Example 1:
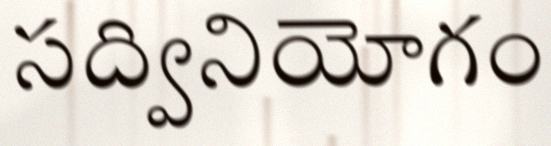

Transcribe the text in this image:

సద్వినియోగం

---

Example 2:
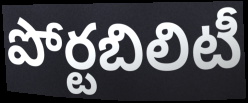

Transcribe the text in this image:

పోర్టబిలిటీ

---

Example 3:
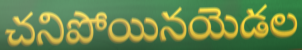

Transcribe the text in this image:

చనిపోయినయెడల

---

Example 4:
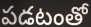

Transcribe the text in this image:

పడటంతో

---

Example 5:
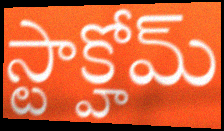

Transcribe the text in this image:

స్టాక్హోమ్